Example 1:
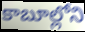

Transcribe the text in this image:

కాబూల్లోని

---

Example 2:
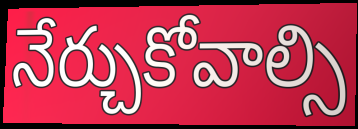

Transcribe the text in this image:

నేర్చుకోవాల్సి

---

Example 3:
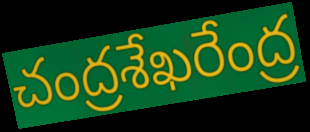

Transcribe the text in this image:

చంద్రశేఖరేంద్ర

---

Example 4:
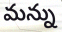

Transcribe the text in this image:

మన్ను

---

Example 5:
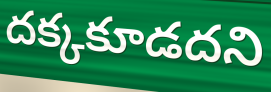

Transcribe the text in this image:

దక్కకూడదని